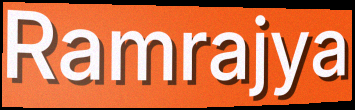
Ramrajya